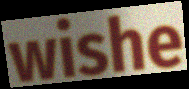
wishe